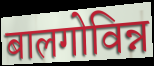
बालगोविन्न